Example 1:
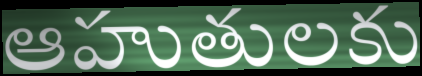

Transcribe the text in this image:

ఆహుతులకు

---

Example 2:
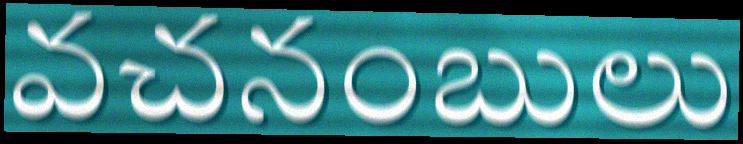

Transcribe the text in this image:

వచనంబులు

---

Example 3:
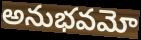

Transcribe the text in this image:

అనుభవమో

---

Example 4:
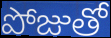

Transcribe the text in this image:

పోజుతో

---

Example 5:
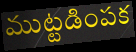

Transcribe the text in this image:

ముట్టడింపక